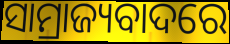
ସାମ୍ରାଜ୍ୟବାଦରେ